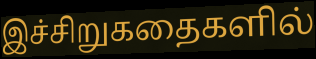
இச்சிறுகதைகளில்